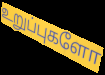
உறுப்புகளோ